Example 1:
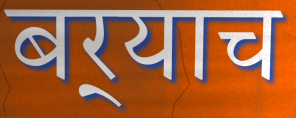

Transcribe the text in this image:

बर्याच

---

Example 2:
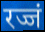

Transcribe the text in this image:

रज्जं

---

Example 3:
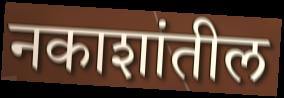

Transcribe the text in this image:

नकाशांतील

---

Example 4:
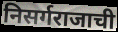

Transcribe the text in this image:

निसर्गराजाची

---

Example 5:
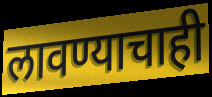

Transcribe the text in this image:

लावण्याचाही